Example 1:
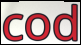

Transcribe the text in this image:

cod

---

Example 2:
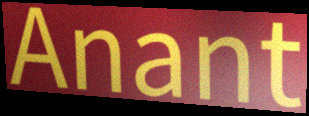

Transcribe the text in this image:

Anant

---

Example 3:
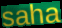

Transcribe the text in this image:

saha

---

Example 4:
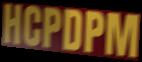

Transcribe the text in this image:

HCPDPM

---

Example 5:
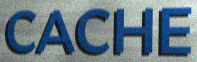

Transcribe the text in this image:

CACHE